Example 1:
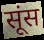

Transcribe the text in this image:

सूंस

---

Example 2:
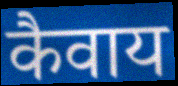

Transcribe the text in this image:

कैवाय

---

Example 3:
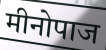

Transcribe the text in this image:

मीनोपाज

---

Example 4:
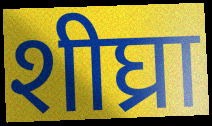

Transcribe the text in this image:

शीघ्रा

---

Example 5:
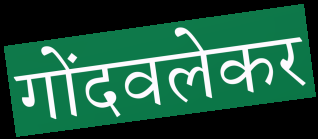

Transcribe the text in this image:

गोंदवलेकर